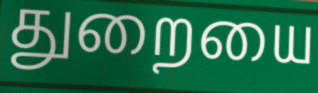
துறையை